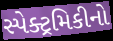
સ્પેક્ટ્રમિકીનો